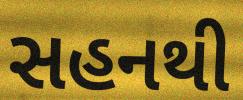
સહનથી